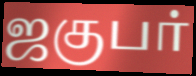
ஜகுபர்